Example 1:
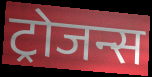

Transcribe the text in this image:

ट्रोजन्स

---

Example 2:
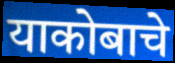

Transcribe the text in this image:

याकोबाचे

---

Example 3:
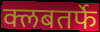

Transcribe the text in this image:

क्लबतर्फे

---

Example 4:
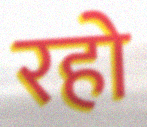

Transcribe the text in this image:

रहो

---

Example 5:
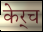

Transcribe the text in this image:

केर्च